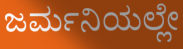
ಜರ್ಮನಿಯಲ್ಲೇ